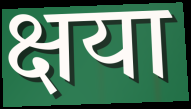
क्षया